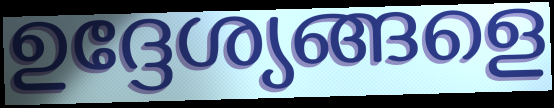
ഉദ്ദേശ്യങ്ങളെ